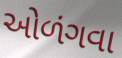
ઓળંગવા